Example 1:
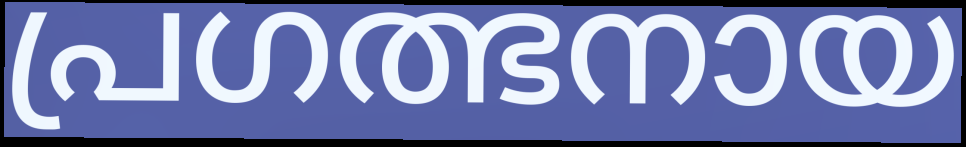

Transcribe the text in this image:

പ്രഗത്ഭനായ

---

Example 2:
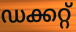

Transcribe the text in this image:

ഡക്കറ്റ്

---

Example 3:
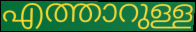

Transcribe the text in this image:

എത്താറുള്ള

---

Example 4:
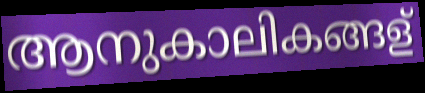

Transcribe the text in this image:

ആനുകാലികങ്ങള്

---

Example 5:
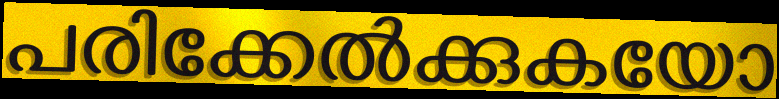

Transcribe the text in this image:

പരിക്കേൽക്കുകയോ